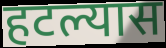
हटल्यास